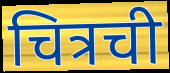
चित्रची